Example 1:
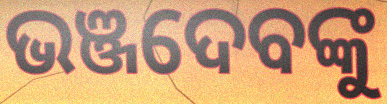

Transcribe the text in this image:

ଭଞ୍ଜଦେବଙ୍କୁ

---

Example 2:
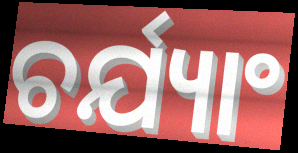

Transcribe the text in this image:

ଚର୍ଯ୍ୟାଂ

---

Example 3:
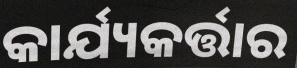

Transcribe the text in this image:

କାର୍ଯ୍ୟକର୍ତ୍ତାର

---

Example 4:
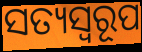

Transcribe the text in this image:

ସତ୍ୟସ୍ୱରୂପ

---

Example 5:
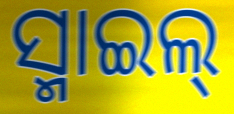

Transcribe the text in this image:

ସ୍ମାଇଲ୍